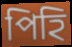
পিহি